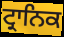
ਟ੍ਰਾਨਿਕ